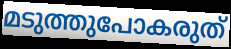
മടുത്തുപോകരുത്